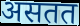
असतत